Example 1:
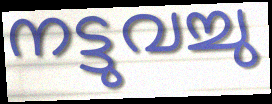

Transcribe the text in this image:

നട്ടുവച്ചു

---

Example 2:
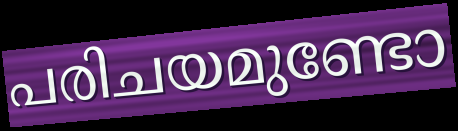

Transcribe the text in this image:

പരിചയമുണ്ടോ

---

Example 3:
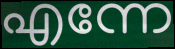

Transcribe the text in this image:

എന്നേ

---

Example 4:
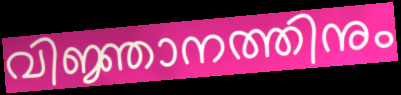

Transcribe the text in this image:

വിജ്ഞാനത്തിനും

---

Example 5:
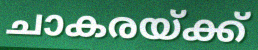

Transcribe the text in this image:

ചാകരയ്ക്ക്